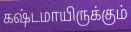
கஷ்டமாயிருக்கும்